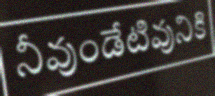
నీవుండేటివునికి